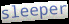
sleeper